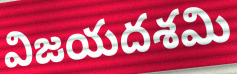
విజయదశమి